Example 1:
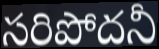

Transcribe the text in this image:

సరిపోదనీ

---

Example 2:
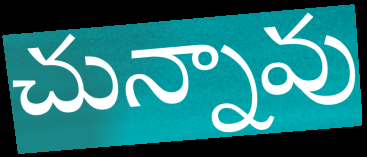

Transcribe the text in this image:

చున్నావు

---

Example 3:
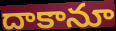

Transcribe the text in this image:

దాకానూ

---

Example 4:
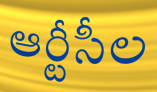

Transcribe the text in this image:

ఆర్టీసీల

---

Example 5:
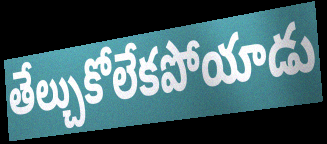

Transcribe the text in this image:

తేల్చుకోలేకపోయాడు